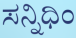
ಸನ್ನಿಧಿಂ